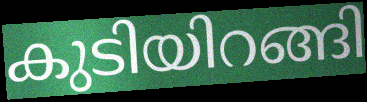
കുടിയിറങ്ങി